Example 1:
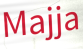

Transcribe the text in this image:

Majja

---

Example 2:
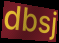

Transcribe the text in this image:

dbsj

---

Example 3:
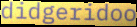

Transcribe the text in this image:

didgeridoo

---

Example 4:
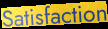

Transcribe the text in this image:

Satisfaction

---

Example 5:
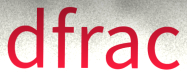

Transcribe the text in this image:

dfrac